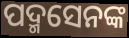
ପଦ୍ମସେନଙ୍କ